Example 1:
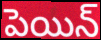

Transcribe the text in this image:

పెయిన్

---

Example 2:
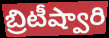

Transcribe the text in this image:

బ్రిటీష్వారి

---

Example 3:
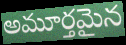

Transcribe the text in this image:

అమూర్తమైన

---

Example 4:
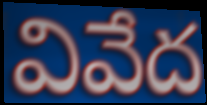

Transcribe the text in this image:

వివేద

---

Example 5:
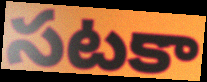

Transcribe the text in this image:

సటకా